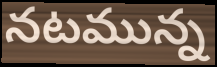
నటమున్న